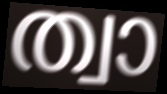
ത്വാ